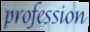
profession